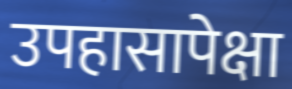
उपहासापेक्षा